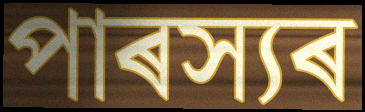
পাৰস্যৰ